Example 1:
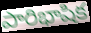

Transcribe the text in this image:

పారిభాషిక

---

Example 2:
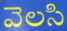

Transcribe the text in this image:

వెలసి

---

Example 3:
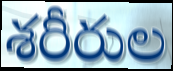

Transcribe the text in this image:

శరీరుల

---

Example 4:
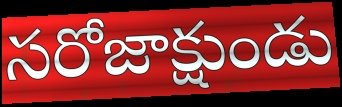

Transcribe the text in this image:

సరోజాక్షుండు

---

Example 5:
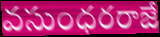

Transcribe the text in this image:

వసుంధరరాజే